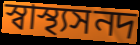
স্বাস্থ্যসনদ